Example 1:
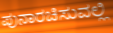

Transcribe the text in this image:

ಪುನಾರಚಿಸುವಲ್ಲಿ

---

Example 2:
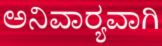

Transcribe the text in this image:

ಅನಿವಾರ‍್ಯವಾಗಿ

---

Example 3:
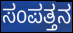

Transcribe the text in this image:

ಸಂಪತ್ತನ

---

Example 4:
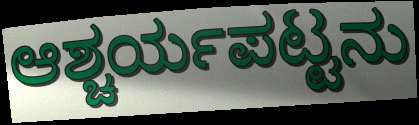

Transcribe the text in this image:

ಆಶ್ಚರ್ಯಪಟ್ಟನು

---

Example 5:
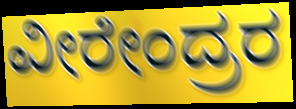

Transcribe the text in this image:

ವೀರೇಂದ್ರರ